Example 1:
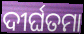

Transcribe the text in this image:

ଦୀର୍ଘତମା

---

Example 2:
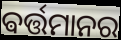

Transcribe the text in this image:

ଵର୍ତ୍ତମାନର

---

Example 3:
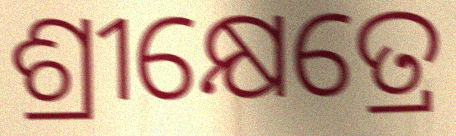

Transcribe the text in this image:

ଶ୍ରୀକ୍ଷେତ୍ରେ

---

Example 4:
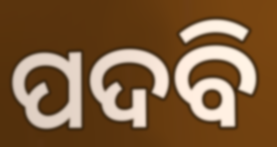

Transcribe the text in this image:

ପଦବି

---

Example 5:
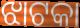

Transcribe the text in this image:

ଝାଟକା